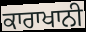
ਕਾਰਾਖਾਨੀ